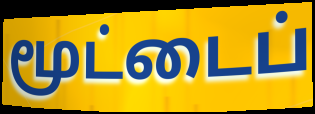
மூட்டைப்